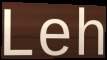
Leh